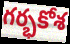
గర్భకోశ